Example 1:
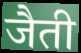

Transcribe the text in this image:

जैती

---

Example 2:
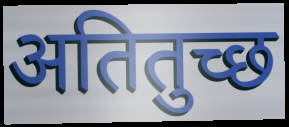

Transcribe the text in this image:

अतितुच्छ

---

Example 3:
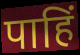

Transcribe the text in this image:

पाहिं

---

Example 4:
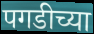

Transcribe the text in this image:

पगडीच्या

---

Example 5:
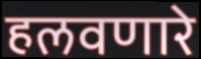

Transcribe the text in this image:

हलवणारे